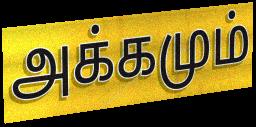
அக்கமும்